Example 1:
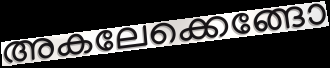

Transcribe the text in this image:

അകലേക്കെങ്ങോ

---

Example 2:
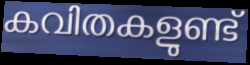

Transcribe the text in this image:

കവിതകളുണ്ട്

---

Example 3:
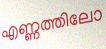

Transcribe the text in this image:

എണ്ണത്തിലോ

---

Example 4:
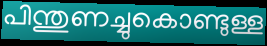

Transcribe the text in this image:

പിന്തുണച്ചുകൊണ്ടുള്ള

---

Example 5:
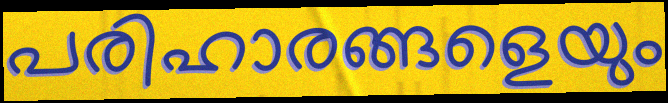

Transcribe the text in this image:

പരിഹാരങ്ങളെയും